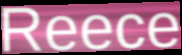
Reece